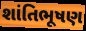
શાંતિભૂષણ